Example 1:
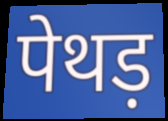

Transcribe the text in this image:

पेथड़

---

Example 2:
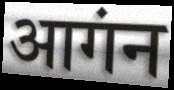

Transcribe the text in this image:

आगंन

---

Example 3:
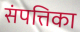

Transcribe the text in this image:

संपत्तिका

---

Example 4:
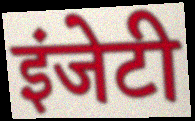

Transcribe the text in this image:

इंजेटी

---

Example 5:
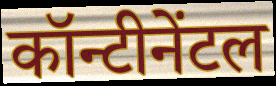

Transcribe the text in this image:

कॉन्टीनेंटल